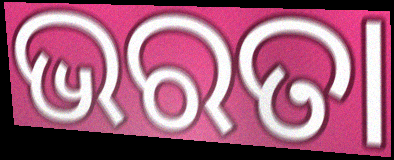
ଭରତା